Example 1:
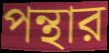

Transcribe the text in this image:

পন্থার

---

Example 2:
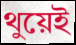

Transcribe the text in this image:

থুয়েই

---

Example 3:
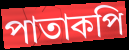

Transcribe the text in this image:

পাতাকপি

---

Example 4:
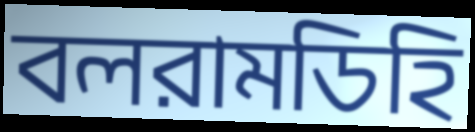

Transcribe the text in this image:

বলরামডিহি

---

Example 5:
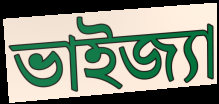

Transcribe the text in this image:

ভাইজ্যা